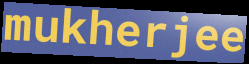
mukherjee